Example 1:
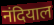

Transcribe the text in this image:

नंदियाल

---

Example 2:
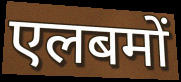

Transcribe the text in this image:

एलबमों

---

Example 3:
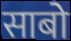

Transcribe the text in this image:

साबो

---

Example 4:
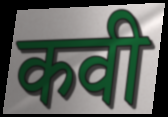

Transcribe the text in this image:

कवी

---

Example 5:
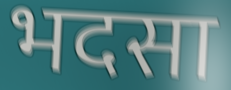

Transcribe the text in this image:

भदसा